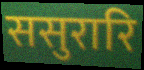
ससुरारि